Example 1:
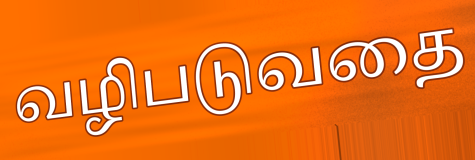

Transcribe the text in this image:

வழிபடுவதை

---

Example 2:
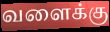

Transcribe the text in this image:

வளைக்கு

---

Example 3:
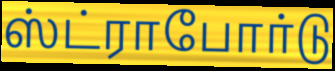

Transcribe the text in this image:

ஸ்ட்ராபோர்டு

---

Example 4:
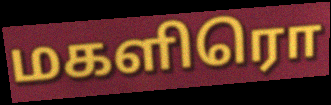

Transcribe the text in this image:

மகளிரொ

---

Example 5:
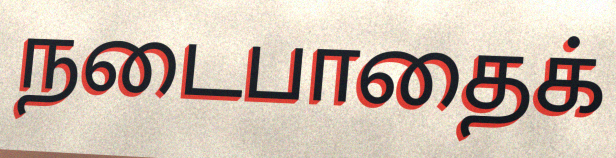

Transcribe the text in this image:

நடைபாதைக்